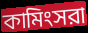
কামিংসরা